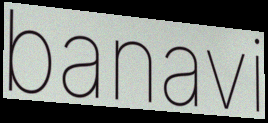
banavi